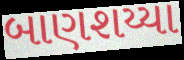
બાણશય્યા